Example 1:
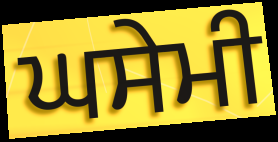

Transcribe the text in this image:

ਘਸੇਮੀ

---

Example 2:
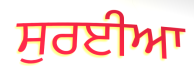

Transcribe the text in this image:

ਸੁਰਈਆ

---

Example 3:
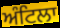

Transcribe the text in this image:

ਅੰਟਿਲਾ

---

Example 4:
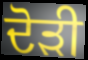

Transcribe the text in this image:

ਦੋੜੀ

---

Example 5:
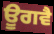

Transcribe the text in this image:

ਊਗਵੈ